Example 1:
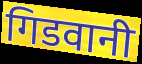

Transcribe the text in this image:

गिडवानी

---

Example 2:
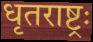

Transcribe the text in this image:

धृतराष्ट्रः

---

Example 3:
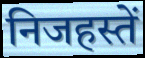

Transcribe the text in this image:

निजहस्तें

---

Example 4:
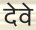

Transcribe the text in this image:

देवे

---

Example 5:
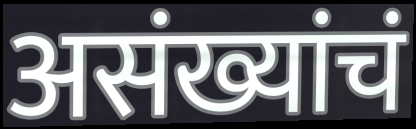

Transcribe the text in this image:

असंख्यांचं